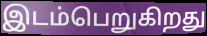
இடம்பெறுகிறது